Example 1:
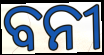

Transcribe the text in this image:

ବନୀ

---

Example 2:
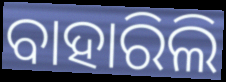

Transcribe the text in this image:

ବାହାରିଲି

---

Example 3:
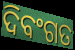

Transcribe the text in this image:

ଦିବଂଗତ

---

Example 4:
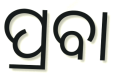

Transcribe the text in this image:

ପ୍ରବା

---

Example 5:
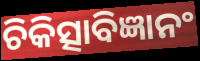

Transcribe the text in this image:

ଚିକିତ୍ସାବିଜ୍ଞାନଂ